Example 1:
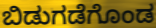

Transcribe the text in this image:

ಬಿಡುಗಡೆಗೊಂಡ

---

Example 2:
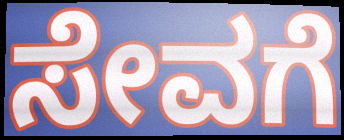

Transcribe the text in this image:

ಸೇವಗೆ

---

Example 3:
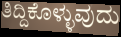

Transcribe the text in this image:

ತಿದ್ದಿಕೊಳ್ಳುವುದು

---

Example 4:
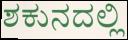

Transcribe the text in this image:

ಶಕುನದಲ್ಲಿ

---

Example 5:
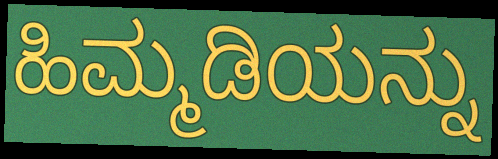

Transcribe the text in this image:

ಹಿಮ್ಮಡಿಯನ್ನು